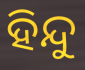
ହିନ୍ଦୁ